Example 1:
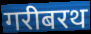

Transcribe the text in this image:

गरीबरथ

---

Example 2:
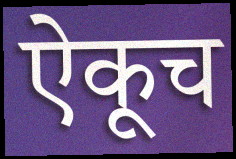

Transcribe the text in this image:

ऐकूच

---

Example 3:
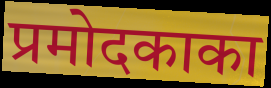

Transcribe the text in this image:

प्रमोदकाका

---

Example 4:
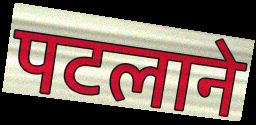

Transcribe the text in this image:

पटलाने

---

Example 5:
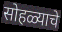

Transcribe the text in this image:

सोहळ्याचे